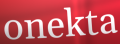
onekta